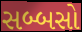
સબ્બસો